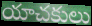
యాచకులు